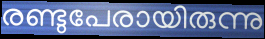
രണ്ടുപേരായിരുന്നു